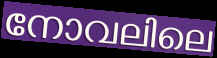
നോവലിലെ